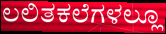
ಲಲಿತಕಲೆಗಳಲ್ಲೂ